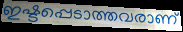
ഇഷ്ടപ്പെടാത്തവരാണ്